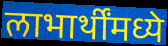
लाभार्थींमध्ये